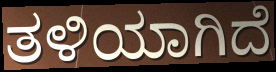
ತಳಿಯಾಗಿದೆ